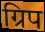
ग्रिप